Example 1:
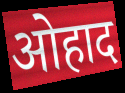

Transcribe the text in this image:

ओहाद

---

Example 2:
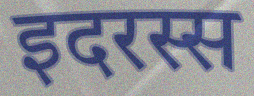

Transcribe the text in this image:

इदरस्स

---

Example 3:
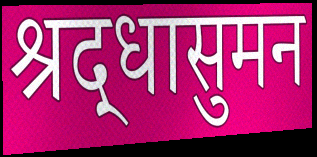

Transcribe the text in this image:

श्रद्धासुमन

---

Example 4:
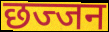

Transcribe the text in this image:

छज्जन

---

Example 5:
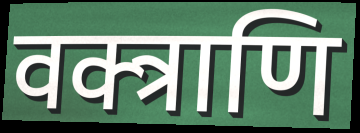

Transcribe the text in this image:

वक्त्राणि